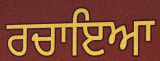
ਰਚਾਇਆ